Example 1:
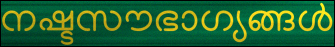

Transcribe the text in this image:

നഷ്ടസൗഭാഗ്യങ്ങൾ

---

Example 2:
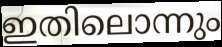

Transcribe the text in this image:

ഇതിലൊന്നും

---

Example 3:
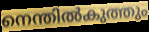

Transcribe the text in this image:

നെന്തിൽകുത്തും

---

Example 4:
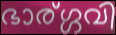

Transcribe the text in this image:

ഭാര്ഗ്ഗവി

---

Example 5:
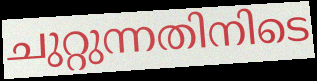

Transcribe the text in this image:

ചുറ്റുന്നതിനിടെ